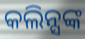
କଲିନ୍ସଙ୍କ